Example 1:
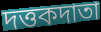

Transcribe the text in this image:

দত্তকদাতা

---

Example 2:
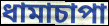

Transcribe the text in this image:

ধামাচাপা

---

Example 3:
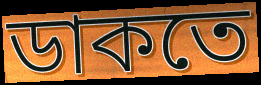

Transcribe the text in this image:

ডাকতে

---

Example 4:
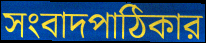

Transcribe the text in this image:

সংবাদপাঠিকার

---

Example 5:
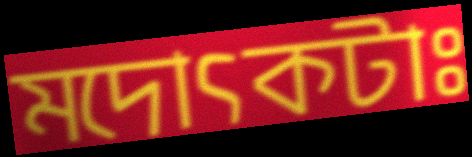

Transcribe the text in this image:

মদোৎকটাঃ